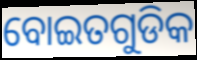
ବୋଇତଗୁଡିକ